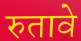
रुतावे